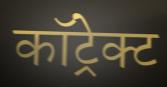
कॉट्रेक्ट